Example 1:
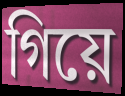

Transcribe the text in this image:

গিয়ে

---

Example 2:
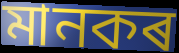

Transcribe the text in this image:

মানকৰ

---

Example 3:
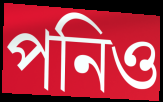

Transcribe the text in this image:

পনিও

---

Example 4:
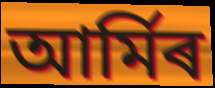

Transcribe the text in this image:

আৰ্মিৰ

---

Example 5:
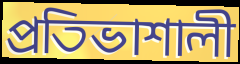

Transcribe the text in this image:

প্ৰতিভাশালী